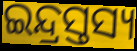
ଇନ୍ଦ୍ରସ୍ତସ୍ୟ